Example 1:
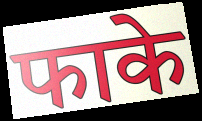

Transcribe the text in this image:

फाके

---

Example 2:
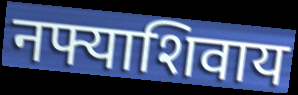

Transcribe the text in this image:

नफ्याशिवाय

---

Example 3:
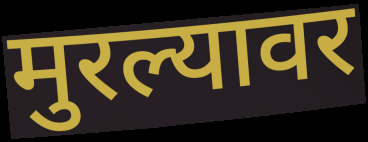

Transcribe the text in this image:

मुरल्यावर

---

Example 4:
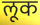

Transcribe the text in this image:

लूक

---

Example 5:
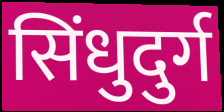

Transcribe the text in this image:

सिंधुदुर्ग